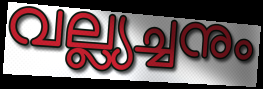
വല്ല്യച്ചനും